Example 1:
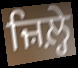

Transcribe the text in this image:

ਜ਼ਿਲ਼੍ਹੇ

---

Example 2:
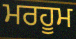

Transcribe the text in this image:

ਮਰਹੂਮ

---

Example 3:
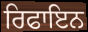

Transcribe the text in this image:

ਰਿਫਾਇਨ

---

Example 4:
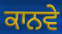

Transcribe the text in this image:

ਕਾਨਵੇ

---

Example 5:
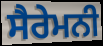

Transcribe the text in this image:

ਸੈਰੇਮਨੀ